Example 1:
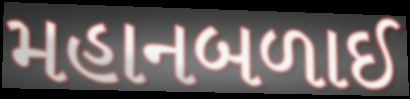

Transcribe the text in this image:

મહાનબળાઈ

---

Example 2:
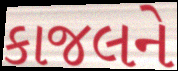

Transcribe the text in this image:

કાજલને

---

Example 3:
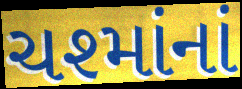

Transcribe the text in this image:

ચશ્માંનાં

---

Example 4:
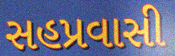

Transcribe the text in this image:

સહપ્રવાસી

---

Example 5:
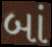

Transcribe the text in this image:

બાં